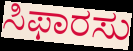
ಸಿಫಾರಸು